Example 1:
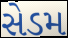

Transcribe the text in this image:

સેડમ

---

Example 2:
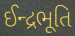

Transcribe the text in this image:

ઈન્દ્રભૂતિ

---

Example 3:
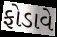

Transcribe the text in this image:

ફોડાવે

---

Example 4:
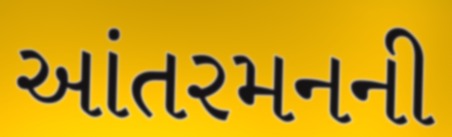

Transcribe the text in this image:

આંતરમનની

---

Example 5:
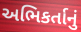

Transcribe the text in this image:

અભિકર્તાનું